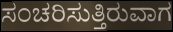
ಸಂಚರಿಸುತ್ತಿರುವಾಗ